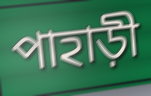
পাহাড়ী